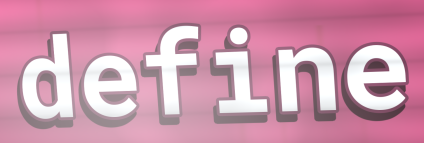
define